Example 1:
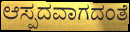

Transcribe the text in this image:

ಆಸ್ಪದವಾಗದಂತೆ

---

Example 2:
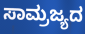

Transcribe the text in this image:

ಸಾಮ್ರಜ್ಯದ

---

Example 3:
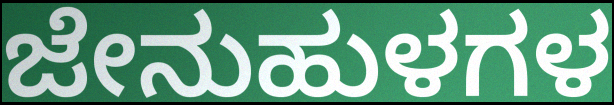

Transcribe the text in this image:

ಜೇನುಹುಳಗಳ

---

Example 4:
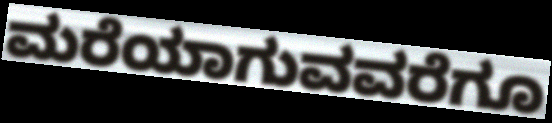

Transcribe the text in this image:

ಮರೆಯಾಗುವವರೆಗೂ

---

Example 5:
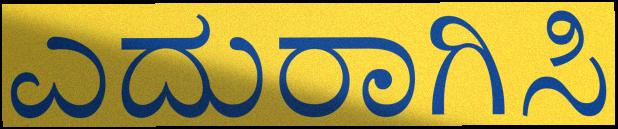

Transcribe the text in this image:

ಎದುರಾಗಿಸಿ